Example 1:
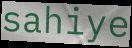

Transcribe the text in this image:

sahiye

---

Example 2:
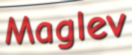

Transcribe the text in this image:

Maglev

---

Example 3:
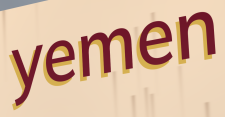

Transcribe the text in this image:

yemen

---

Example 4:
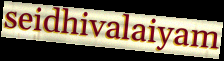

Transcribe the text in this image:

seidhivalaiyam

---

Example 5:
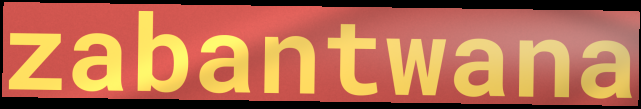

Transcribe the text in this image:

zabantwana